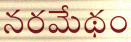
నరమేథం